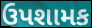
ઉપશામક